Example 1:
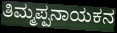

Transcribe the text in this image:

ತಿಮ್ಮಪ್ಪನಾಯಕನ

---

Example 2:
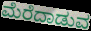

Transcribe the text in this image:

ಮೆರೆದಾಡುವ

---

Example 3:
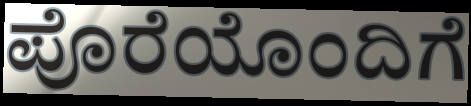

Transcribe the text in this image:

ಪೊರೆಯೊಂದಿಗೆ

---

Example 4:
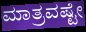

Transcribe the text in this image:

ಮಾತ್ರವಷ್ಟೇ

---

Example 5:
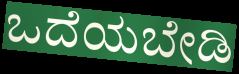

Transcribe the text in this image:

ಒದೆಯಬೇಡಿ